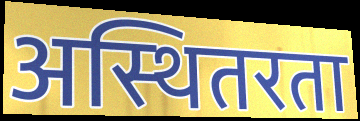
अस्थितरता